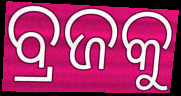
ବ୍ରଜକୁ